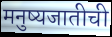
मनुष्यजातीची